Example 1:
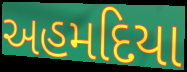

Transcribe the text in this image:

અહમદિયા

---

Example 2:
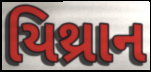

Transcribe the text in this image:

યિથ્રાન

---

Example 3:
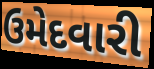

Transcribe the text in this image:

ઉમેદવારી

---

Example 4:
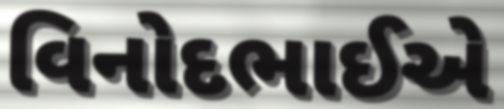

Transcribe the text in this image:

વિનોદભાઈએ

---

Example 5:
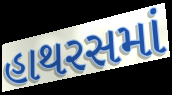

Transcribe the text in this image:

હાથરસમાં